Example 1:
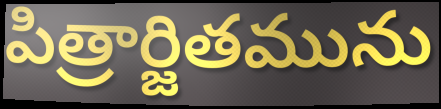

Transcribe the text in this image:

పిత్రార్జితమును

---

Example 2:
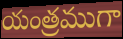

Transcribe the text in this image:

యంత్రముగా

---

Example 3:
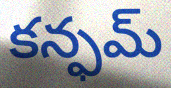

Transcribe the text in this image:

కన్ఫమ్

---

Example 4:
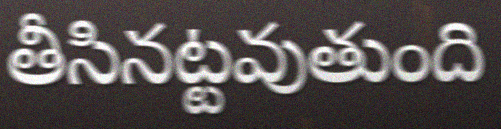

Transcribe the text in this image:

తీసినట్టవుతుంది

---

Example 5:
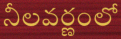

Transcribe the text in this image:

నీలవర్ణంలో